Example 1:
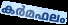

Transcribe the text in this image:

കർമഫലം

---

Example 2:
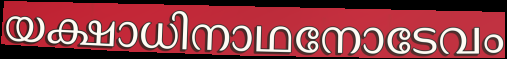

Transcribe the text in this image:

യക്ഷാധിനാഥനോടേവം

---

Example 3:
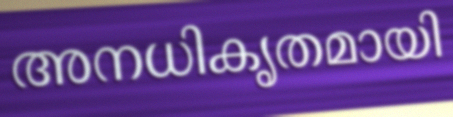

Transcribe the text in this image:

അനധികൃതമായി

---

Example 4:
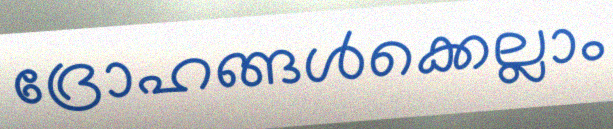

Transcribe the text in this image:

ദ്രോഹങ്ങൾക്കെല്ലാം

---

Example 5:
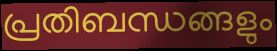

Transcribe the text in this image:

പ്രതിബന്ധങ്ങളും